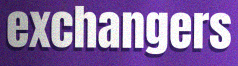
exchangers